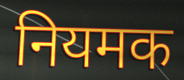
नियमक